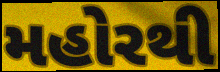
મહોરથી